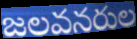
జలవనరుల